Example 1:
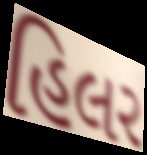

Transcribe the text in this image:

હિલર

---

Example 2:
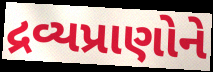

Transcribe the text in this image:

દ્રવ્યપ્રાણોને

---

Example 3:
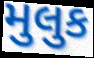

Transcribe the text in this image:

મુલુક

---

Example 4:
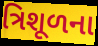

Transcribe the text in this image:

ત્રિશૂળના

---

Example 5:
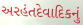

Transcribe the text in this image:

અરહંતદેવાદિકનું